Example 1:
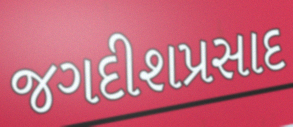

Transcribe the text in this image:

જગદીશપ્રસાદ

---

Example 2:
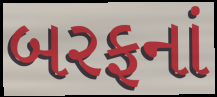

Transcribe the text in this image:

બરફનાં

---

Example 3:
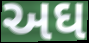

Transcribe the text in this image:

અઘ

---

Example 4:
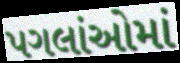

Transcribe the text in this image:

પગલાંઓમાં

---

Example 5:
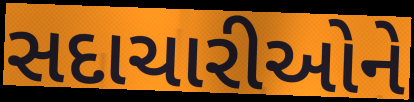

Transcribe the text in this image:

સદાચારીઓને